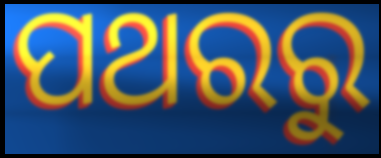
ପଥରରୁ